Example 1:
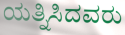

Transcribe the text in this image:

ಯತ್ನಿಸಿದವರು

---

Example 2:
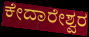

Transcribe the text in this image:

ಕೇದಾರೇಶ್ವರ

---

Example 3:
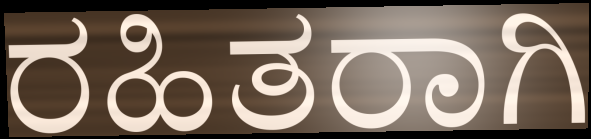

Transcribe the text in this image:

ರಹಿತರಾಗಿ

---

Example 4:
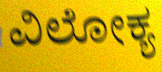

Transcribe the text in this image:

ವಿಲೋಕ್ಯ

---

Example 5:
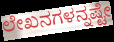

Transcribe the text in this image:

ಲೇಖನಗಳನ್ನಷ್ಟೇ